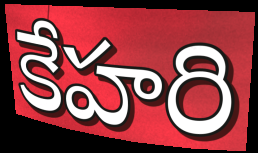
కేహరి